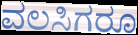
ವಲಸಿಗರೂ